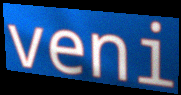
veni